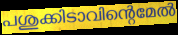
പശുക്കിടാവിന്റെമേൽ